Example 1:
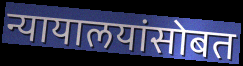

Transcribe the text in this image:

न्यायालयांसोबत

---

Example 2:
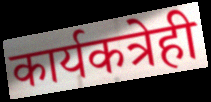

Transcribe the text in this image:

कार्यकत्रेही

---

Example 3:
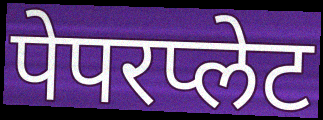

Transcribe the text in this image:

पेपरप्लेट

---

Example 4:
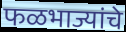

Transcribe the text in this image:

फळभाज्यांचे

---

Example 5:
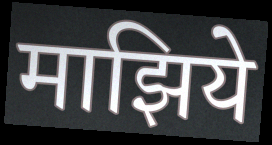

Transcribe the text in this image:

माझिये